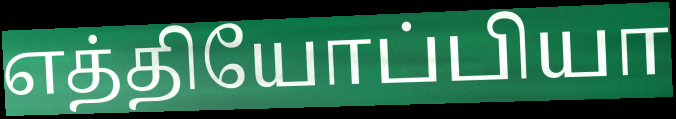
எத்தியோப்பியா